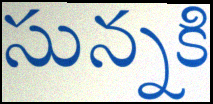
సున్నకి